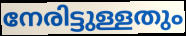
നേരിട്ടുള്ളതും